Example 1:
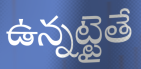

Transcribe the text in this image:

ఉన్నట్టైతే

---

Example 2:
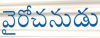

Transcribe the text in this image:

వైరోచనుడు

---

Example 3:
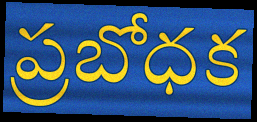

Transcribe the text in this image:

ప్రబోధక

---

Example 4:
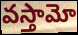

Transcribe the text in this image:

వస్తామో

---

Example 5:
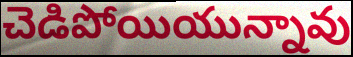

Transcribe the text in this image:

చెడిపోయియున్నావు